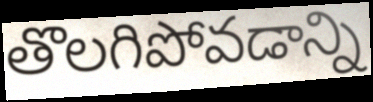
తొలగిపోవడాన్ని